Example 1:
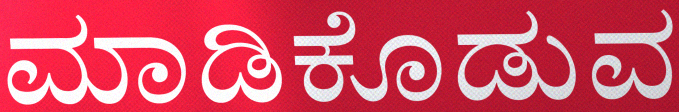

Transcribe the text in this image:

ಮಾಡಿಕೊಡುವ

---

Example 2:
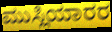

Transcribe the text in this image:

ಮುಸ್ಲಿಯಾರರ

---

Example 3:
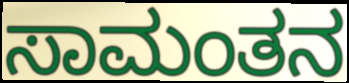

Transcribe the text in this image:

ಸಾಮಂತನ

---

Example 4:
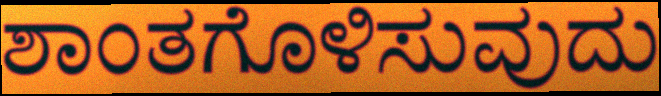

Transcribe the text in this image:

ಶಾಂತಗೊಳಿಸುವುದು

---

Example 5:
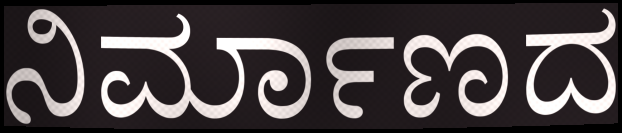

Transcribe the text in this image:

ನಿರ್ಮಾಣದ